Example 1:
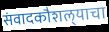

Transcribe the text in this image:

संवादकौशल्याचा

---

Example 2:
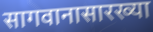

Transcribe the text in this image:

सागवानासारख्या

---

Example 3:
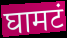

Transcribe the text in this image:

घामटं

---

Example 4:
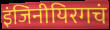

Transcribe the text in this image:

इंजिनीयिरगचं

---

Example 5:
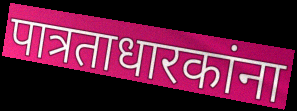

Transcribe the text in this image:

पात्रताधारकांना